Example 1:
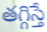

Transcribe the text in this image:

తగ్గిస్తే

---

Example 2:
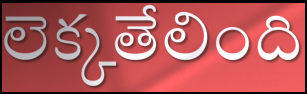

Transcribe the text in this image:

లెక్కతేలింది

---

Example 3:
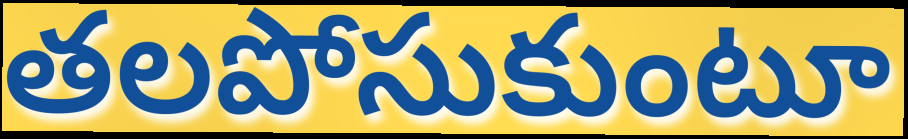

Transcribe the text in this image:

తలపోసుకుంటూ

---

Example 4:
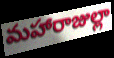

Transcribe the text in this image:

మహారాజుల్లా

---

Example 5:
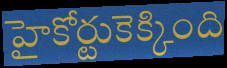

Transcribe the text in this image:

హైకోర్టుకెక్కింది